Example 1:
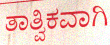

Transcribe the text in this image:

ತಾತ್ವಿಕವಾಗಿ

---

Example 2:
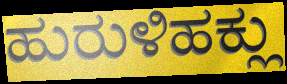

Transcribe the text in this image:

ಹುರುಳಿಹಕ್ಲು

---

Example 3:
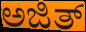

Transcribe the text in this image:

ಅಜಿತ್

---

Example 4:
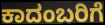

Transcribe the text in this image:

ಕಾದಂಬರಿಗೆ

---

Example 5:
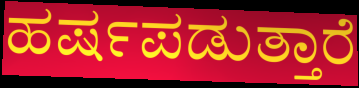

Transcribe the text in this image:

ಹರ್ಷಪಡುತ್ತಾರೆ